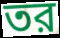
তর